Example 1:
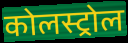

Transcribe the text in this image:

कोलस्ट्रोल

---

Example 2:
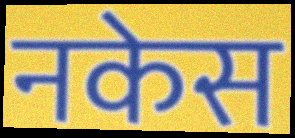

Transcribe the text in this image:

नकेस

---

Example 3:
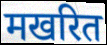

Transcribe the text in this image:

मखरित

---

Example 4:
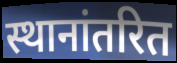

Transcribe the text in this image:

स्थानांतरित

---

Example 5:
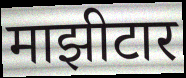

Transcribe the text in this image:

माझीटार